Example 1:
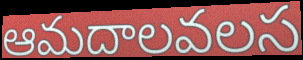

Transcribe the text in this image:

ఆమదాలవలస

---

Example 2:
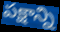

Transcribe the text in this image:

పక్షాన్ని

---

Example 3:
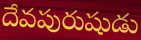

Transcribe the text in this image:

దేవపురుషుడు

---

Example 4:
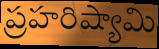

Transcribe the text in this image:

ప్రహరిష్యామి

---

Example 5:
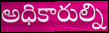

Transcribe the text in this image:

అధికారుల్ని